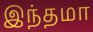
இந்தமா